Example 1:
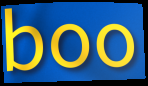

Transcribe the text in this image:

boo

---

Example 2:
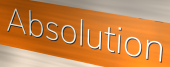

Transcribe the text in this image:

Absolution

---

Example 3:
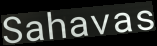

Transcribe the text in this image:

Sahavas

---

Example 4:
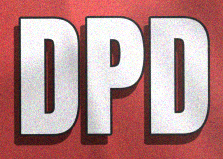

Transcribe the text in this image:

DPD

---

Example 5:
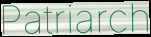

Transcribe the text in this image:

Patriarch